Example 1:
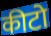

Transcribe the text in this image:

कीटो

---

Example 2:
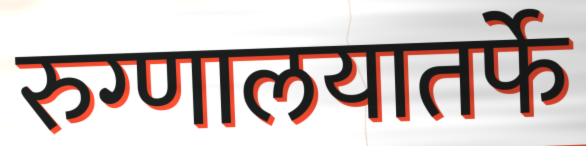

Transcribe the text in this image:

रुग्णालयातर्फे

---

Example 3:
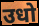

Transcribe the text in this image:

उधो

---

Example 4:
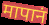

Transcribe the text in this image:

मापानं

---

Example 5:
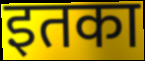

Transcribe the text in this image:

इतका